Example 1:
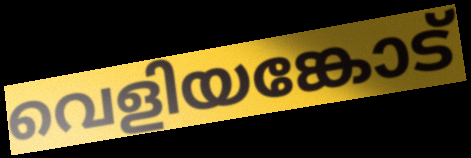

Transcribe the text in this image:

വെളിയങ്കോട്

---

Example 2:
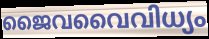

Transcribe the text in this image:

ജൈവവൈവിധ്യം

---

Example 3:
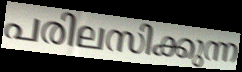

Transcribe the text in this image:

പരിലസിക്കുന്ന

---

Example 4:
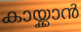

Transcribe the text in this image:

കായ്ക്കാൻ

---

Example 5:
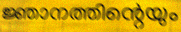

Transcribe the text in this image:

ജ്ഞാനത്തിന്റെയും